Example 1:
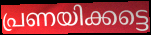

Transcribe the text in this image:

പ്രണയിക്കട്ടെ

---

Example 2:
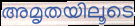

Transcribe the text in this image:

അമൃതയിലൂടെ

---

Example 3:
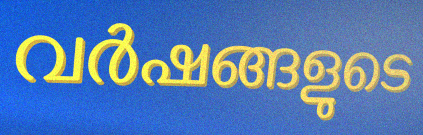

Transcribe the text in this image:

വർഷങ്ങളുടെ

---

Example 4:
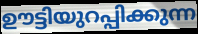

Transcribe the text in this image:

ഊട്ടിയുറപ്പിക്കുന്ന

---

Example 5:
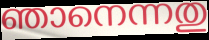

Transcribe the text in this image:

ഞാനെന്നതു